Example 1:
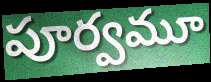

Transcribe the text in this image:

పూర్వమూ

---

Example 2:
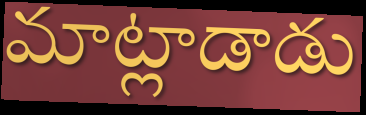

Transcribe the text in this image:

మాట్లాడాడు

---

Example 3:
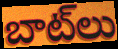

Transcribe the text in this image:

బాట్‌లు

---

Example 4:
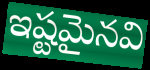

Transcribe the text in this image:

ఇష్టమైనవి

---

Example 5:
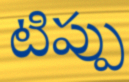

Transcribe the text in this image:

టిప్పు